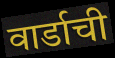
वार्डाची